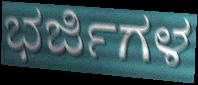
ಭರ್ಜಿಗಳ